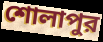
শোলাপুর